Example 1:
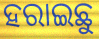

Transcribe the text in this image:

ହରାଇଛୁ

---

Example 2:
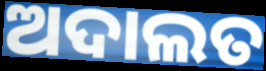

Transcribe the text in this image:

ଅଦାଲତ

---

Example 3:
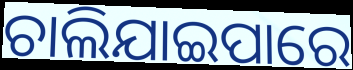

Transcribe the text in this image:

ଚାଲିଯାଇପାରେ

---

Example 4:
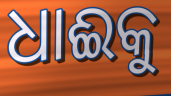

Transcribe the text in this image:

ଧାଈକୁ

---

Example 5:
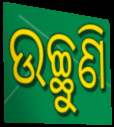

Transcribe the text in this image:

ଉଚ୍ଛୁଣି